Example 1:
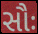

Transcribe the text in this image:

સૌઃ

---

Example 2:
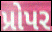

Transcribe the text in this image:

પ્રોપર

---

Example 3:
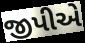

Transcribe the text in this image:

જીપીએ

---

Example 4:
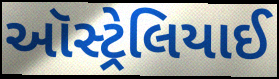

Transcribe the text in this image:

ઑસ્ટ્રેલિયાઈ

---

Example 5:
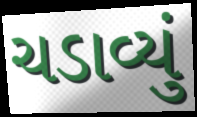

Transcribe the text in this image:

ચડાવ્યું